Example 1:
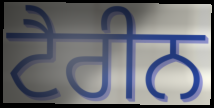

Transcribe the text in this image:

ਟੈਰੀਨ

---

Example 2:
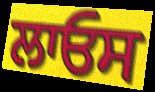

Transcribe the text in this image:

ਲਾਓਸ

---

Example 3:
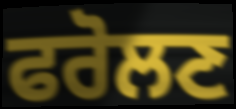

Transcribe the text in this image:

ਫਰੋਲਣ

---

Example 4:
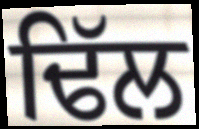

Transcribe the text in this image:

ਢਿੱਲ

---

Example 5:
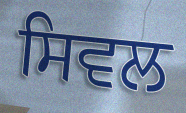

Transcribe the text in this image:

ਸਿਵਲ